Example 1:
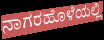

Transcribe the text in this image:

ನಾಗರಹೊಳೆಯಲ್ಲಿ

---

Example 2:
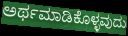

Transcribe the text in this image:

ಅರ್ಥಮಾಡಿಕೊಳ್ಳವುದು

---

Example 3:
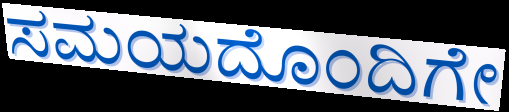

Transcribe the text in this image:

ಸಮಯದೊಂದಿಗೇ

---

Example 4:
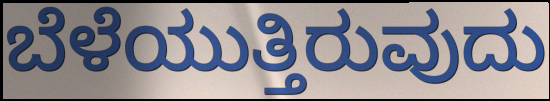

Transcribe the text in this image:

ಬೆಳೆಯುತ್ತಿರುವುದು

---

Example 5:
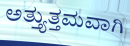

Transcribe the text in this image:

ಅತ್ತ್ಯುತ್ತಮವಾಗಿ